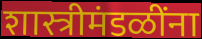
शास्त्रीमंडळींना